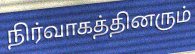
நிர்வாகத்தினரும்